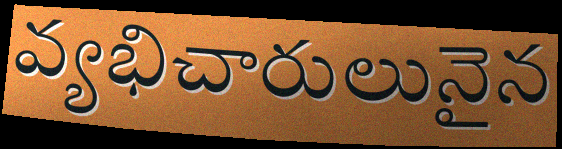
వ్యభిచారులునైన